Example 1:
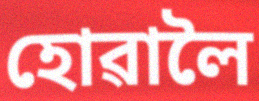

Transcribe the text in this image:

হোৱালৈ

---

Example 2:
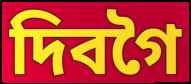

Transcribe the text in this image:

দিবগৈ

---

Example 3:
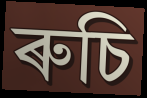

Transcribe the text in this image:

ৰুচি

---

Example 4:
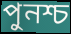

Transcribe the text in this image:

পুনশ্চ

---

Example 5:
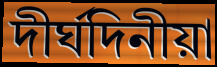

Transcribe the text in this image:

দীৰ্ঘদিনীয়া